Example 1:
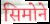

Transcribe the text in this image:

सिमोने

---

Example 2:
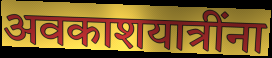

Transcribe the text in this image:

अवकाशयात्रींना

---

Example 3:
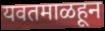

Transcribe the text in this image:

यवतमाळहून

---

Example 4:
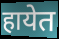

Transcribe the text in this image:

हायेत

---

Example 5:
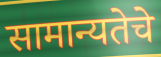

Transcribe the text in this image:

सामान्यतेचे